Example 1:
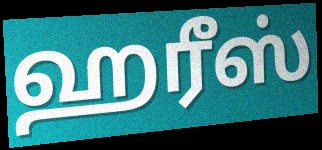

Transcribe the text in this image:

ஹரீஸ்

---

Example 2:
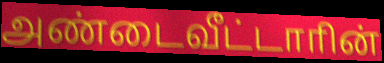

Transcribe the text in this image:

அண்டைவீட்டாரின்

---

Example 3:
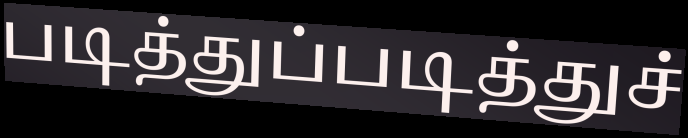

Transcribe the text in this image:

படித்துப்படித்துச்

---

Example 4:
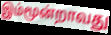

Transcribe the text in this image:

இம்மூன்றாவது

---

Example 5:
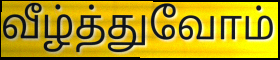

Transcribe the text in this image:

வீழ்த்துவோம்